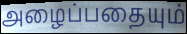
அழைப்பதையும்